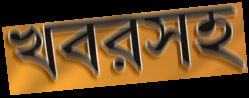
খবরসহ